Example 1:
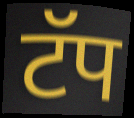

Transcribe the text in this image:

टॅप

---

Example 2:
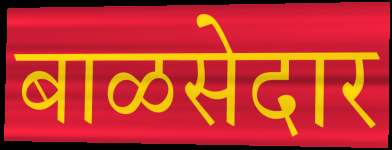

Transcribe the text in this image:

बाळसेदार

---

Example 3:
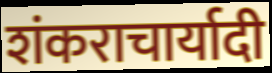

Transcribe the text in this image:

शंकराचार्यादी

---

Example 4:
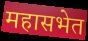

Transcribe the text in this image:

महासभेत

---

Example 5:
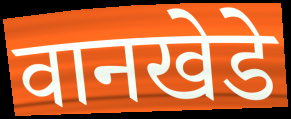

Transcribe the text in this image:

वानखेडे